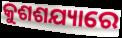
କୁଶଶଯ୍ୟାରେ